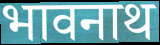
भावनाथ